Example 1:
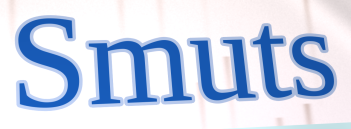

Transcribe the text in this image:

Smuts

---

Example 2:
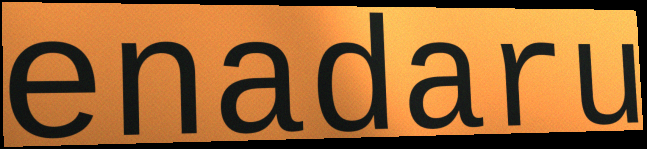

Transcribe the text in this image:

enadaru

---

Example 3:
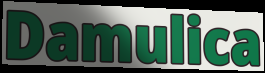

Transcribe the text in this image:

Damulica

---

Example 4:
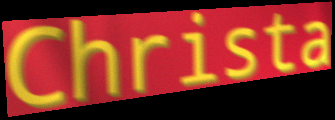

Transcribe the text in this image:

Christa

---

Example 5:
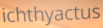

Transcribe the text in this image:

ichthyactus